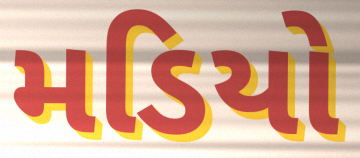
મડિયો